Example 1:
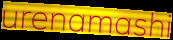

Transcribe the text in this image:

urenamashi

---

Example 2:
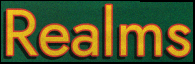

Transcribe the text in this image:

Realms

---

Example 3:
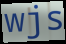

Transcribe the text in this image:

wjs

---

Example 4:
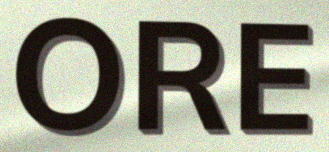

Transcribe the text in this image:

ORE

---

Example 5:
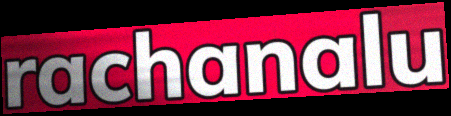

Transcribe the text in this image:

rachanalu